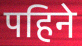
पहिने